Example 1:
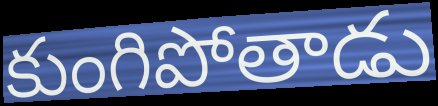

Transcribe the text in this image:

కుంగిపోతాడు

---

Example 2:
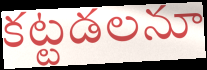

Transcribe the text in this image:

కట్టడలనూ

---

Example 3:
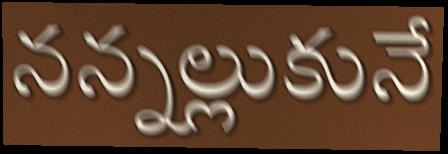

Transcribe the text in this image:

నన్నల్లుకునే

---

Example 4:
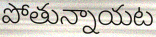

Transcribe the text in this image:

పోతున్నాయట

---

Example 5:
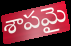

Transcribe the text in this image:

శాపమై